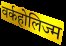
वर्कहोलिज्म